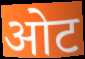
ओट